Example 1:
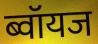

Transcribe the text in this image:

ब्वॉयज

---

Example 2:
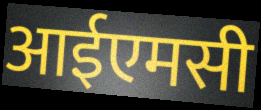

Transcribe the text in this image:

आईएमसी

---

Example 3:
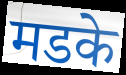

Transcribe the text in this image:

मडके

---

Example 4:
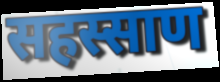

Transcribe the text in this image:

सहस्साण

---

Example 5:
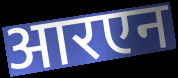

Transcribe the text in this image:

आरएन